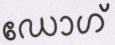
ഡോഗ്